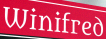
Winifred